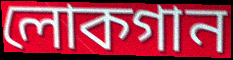
লোকগান